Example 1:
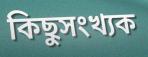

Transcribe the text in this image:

কিছুসংখ্যক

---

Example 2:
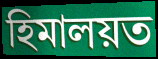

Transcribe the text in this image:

হিমালয়ত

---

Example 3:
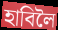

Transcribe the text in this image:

হাবিলৈ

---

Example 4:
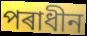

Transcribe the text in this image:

পৰাধীন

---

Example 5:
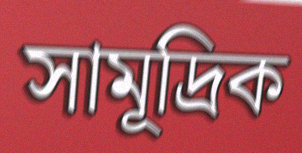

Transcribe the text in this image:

সামূদ্ৰিক